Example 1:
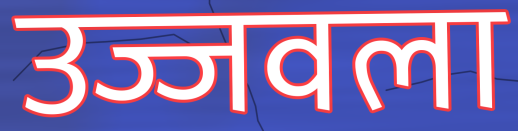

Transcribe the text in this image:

उज्जवला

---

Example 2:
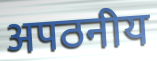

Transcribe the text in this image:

अपठनीय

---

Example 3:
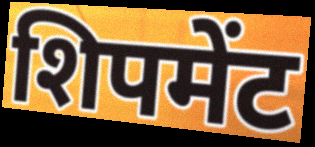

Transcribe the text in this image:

शिपमेंट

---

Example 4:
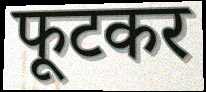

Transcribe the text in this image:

फूटकर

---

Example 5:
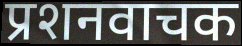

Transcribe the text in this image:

प्रशनवाचक